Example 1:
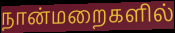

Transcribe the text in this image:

நான்மறைகளில்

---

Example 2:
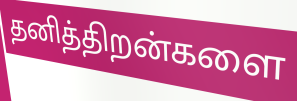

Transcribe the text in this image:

தனித்திறன்களை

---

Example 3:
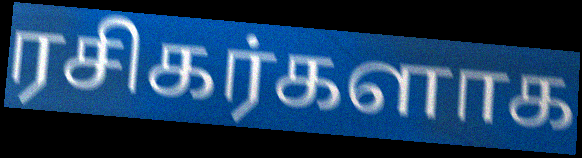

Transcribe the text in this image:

ரசிகர்களாக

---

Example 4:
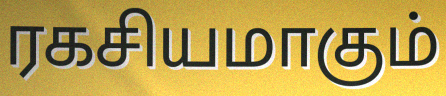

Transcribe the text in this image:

ரகசியமாகும்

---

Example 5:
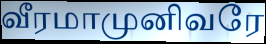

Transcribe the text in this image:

வீரமாமுனிவரே